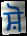
ਸ਼ੋ